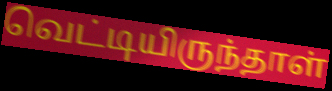
வெட்டியிருந்தாள்